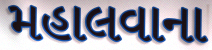
મહાલવાના